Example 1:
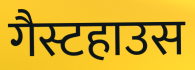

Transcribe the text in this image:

गैस्टहाउस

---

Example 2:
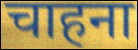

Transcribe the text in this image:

चाहना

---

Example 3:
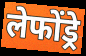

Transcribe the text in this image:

लेफोंड्रे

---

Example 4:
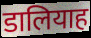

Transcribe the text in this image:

डालियाह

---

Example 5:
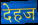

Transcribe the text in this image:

देहज